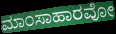
ಮಾಂಸಾಹಾರವೋ